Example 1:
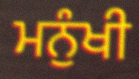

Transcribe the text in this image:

ਮਨੁੰਖੀ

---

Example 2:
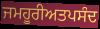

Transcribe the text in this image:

ਜਮਹੂਰੀਅਤਪਸੰਦ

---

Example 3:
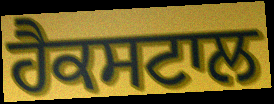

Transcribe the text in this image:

ਹੈਕਸਟਾਲ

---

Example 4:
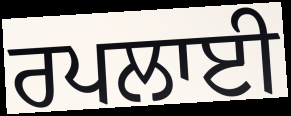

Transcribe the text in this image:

ਰਪਲਾਈ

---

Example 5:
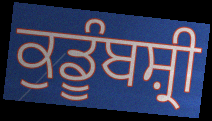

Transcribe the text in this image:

ਕੁਡੂੰਬਸ਼੍ਰੀ